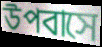
উপবাসে